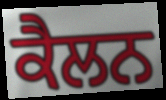
ਕੈਲਨ